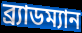
ব্র্যাডম্যান